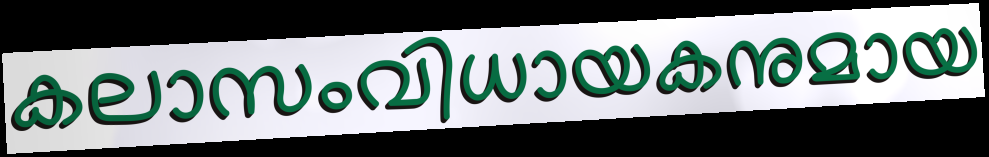
കലാസംവിധായകനുമായ